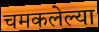
चमकलेल्या